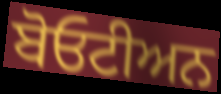
ਬੋਓਟੀਅਨ